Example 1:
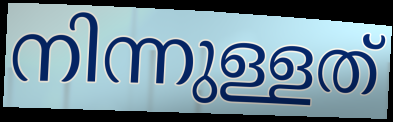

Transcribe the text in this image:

നിന്നുള്ളത്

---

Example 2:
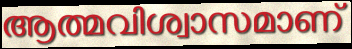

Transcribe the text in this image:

ആത്മവിശ്വാസമാണ്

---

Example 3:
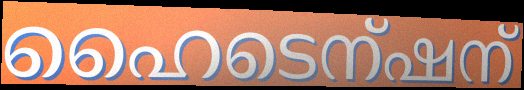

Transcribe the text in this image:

ഹൈടെന്ഷന്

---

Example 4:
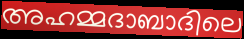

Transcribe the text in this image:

അഹമ്മദാബാദിലെ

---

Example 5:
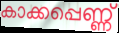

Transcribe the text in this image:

കാക്കപ്പെണ്ണ്